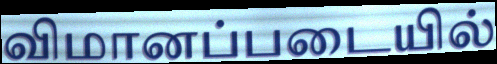
விமானப்படையில்